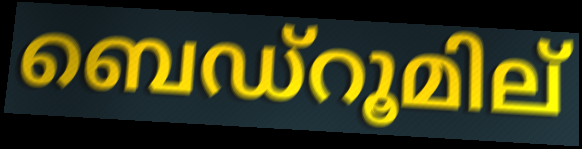
ബെഡ്റൂമില്